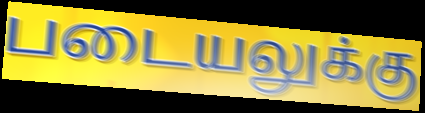
படையலுக்கு